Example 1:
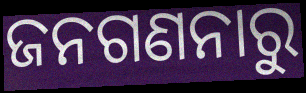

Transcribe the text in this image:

ଜନଗଣନାରୁ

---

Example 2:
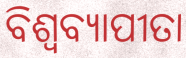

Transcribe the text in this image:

ବିଶ୍ୱବ୍ୟାପୀତା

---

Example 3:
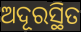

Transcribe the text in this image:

ଅଦୂରସ୍ଥିତ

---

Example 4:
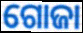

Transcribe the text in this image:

ଗୋଜା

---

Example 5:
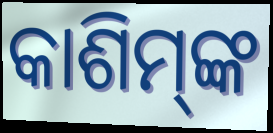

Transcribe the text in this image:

କାଶିମ୍‍ଙ୍କ